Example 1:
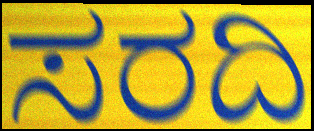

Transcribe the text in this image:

ಸರದಿ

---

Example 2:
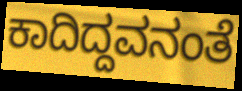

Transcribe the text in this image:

ಕಾದಿದ್ದವನಂತೆ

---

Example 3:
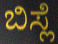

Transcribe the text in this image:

ಬಿಸ್ಲೆ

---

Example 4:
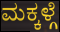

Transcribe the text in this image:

ಮಕ್ಕಳ್ಗೆ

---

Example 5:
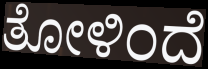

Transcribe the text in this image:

ತೋಳಿಂದೆ